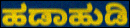
ಹಡಾಹುಡಿ